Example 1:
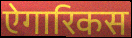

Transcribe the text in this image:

ऐगारिकस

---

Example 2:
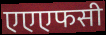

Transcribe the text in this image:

एएएफसी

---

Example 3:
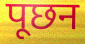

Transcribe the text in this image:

पूछन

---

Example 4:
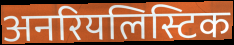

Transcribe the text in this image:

अनरियलिस्टिक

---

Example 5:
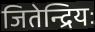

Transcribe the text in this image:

जितेन्द्रियः